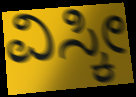
ವಿಸ್ಕೀ